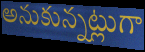
అనుకున్నట్లుగా